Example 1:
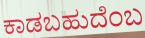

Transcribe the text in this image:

ಕಾಡಬಹುದೆಂಬ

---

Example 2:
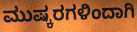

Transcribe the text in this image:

ಮುಷ್ಕರಗಳಿಂದಾಗಿ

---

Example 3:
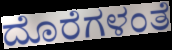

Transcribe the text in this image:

ದೊರೆಗಳಂತೆ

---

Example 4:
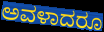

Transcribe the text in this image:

ಅವಳಾದರೂ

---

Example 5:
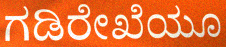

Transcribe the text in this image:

ಗಡಿರೇಖೆಯೂ